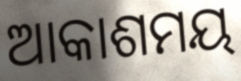
ଆକାଶମୟ